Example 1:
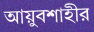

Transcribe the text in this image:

আয়ুবশাহীর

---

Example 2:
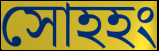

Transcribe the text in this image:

সোহহং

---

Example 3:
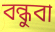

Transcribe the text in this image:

বন্ধুবা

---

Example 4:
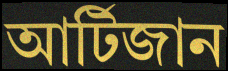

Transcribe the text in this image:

আর্টিজান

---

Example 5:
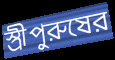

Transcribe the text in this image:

স্ত্রীপুরুষের